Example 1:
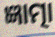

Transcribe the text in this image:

ଜ୍ଞାତ୍ମା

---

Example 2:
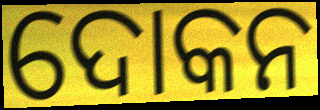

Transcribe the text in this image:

ଦୋକନ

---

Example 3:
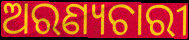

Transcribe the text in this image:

ଅରଣ୍ୟଚାରୀ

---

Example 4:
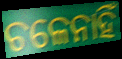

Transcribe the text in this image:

ଚଳେନାହିଁ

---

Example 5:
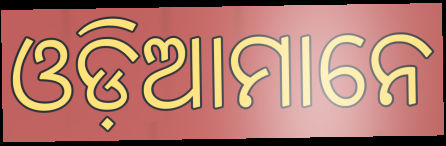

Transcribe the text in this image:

ଓଡ଼ିଆମାନେ